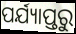
ପର୍ଯ୍ୟାପ୍ତରୁ